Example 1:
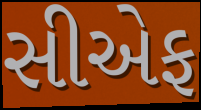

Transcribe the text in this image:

સીએફ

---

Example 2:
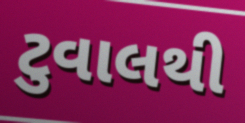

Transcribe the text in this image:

ટુવાલથી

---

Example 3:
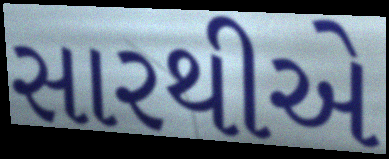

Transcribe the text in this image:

સારથીએ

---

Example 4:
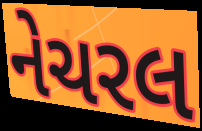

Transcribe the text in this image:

નેચરલ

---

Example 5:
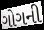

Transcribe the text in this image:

ગોગની